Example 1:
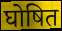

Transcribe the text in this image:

घोषित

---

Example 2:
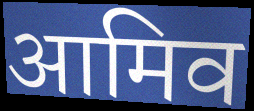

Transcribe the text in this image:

आमिव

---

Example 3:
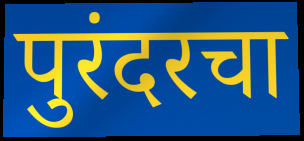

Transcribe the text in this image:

पुरंदरचा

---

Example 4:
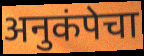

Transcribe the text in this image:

अनुकंपेचा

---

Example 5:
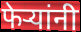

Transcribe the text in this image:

फेऱ्यांनी